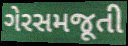
ગેરસમજૂતી